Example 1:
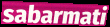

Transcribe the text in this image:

sabarmati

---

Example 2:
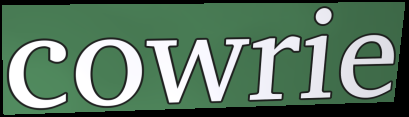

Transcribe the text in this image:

cowrie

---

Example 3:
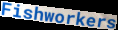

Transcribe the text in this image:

Fishworkers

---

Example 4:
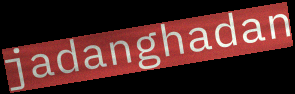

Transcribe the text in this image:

jadanghadan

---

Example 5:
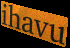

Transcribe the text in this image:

ihavu